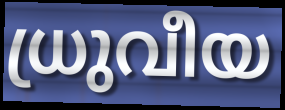
ധ്രുവീയ